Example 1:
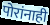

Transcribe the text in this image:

पोरांनाही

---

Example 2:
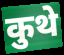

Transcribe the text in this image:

कुथे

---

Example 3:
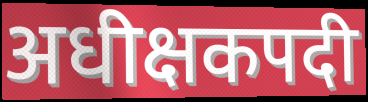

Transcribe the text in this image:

अधीक्षकपदी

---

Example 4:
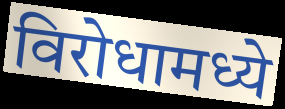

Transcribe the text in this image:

विरोधामध्ये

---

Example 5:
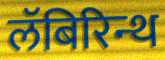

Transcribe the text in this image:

लॅबिरिन्थ